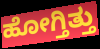
ಹೋಗ್ತಿತ್ತು